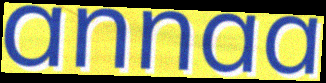
annaa